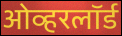
ओव्हरलॉर्ड